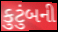
કુટુંબની